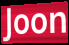
Joon